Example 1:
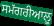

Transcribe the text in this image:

ਸਮੱਗਰੀਆਲੂ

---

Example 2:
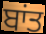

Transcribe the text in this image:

ਬਾਂਤ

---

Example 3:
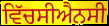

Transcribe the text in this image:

ਵਿੱਚਸੀਐਨਸੀ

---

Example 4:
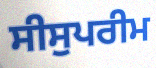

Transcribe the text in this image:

ਸੀਸੁਪਰੀਮ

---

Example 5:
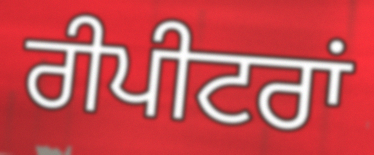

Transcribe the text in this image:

ਰੀਪੀਟਰਾਂ